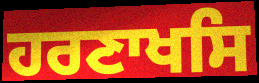
ਹਰਣਾਖਸਿ